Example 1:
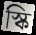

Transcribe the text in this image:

স্কি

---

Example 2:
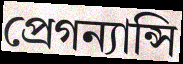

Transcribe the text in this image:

প্রেগন্যান্সি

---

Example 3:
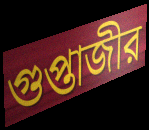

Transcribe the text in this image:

গুপ্তাজীর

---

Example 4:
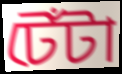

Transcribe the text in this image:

টেঁটা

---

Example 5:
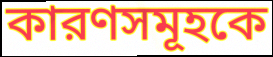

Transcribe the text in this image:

কারণসমূহকে